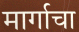
मार्गाचा